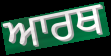
ਆਰਥ